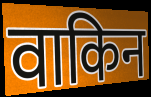
वाकिन